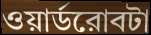
ওয়ার্ডরোবটা